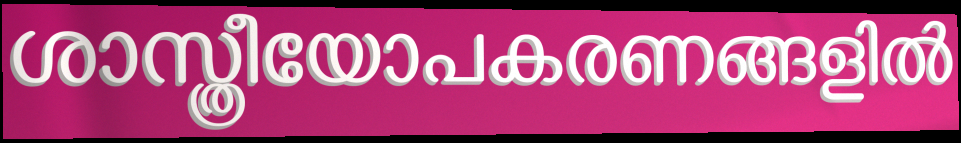
ശാസ്ത്രീയോപകരണങ്ങളിൽ